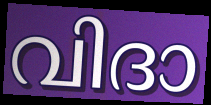
വിദാ